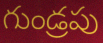
గుండ్రపు